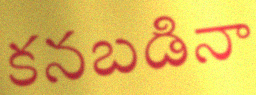
కనబడినా